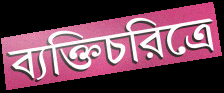
ব্যক্তিচরিত্রে